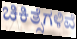
ಚಿಕಿತ್ಸೆಗಳಿವೆ